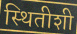
स्थितीशी